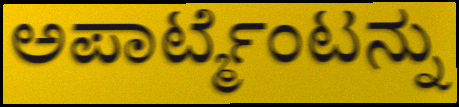
ಅಪಾರ್ಟ್ಮೆಂಟನ್ನು